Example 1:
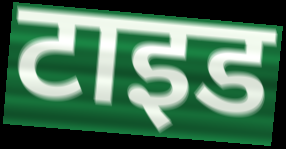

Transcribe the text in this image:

टाइड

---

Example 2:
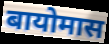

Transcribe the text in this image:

बायोमास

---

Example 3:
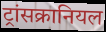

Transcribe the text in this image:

ट्रांसक्रानियल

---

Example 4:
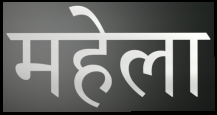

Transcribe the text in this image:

महेला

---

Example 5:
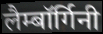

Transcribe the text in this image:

लैम्बॉर्गिनी